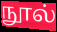
நூல்